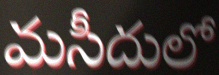
మసీదులో